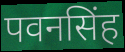
पवनसिंह